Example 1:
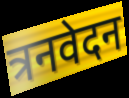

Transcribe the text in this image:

त्रनवेदन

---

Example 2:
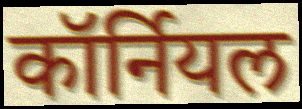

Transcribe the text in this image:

कॉर्नियल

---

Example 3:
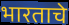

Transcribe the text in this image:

भारताचे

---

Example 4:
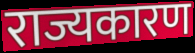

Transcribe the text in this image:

राज्यकारण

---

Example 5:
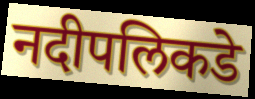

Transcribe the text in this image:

नदीपलिकडे